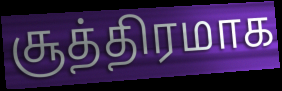
சூத்திரமாக